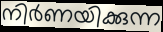
നിർണയിക്കുന്ന